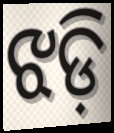
ଝଡ଼ି